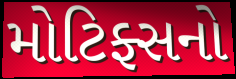
મોટિફ્સનો